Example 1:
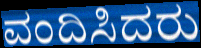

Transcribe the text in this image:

ವಂದಿಸಿದರು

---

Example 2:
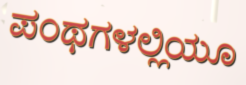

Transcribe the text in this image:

ಪಂಥಗಳಲ್ಲಿಯೂ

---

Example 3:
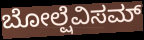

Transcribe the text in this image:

ಬೋಲ್ಷೆವಿಸಮ್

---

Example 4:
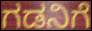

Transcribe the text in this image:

ಗಡನಿಗೆ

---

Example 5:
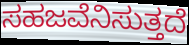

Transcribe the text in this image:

ಸಹಜವೆನಿಸುತ್ತದೆ